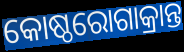
କୋଷ୍ଠରୋଗାକ୍ରାନ୍ତ